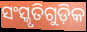
ସଂସ୍କୃତିଗୁଡ଼ିକ